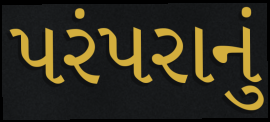
પરંપરાનું